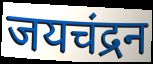
जयचंद्रन